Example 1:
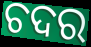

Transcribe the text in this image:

ଚଦର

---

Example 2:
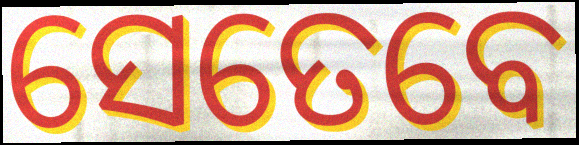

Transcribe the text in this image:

ସେତେବେ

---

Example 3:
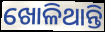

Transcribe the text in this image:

ଖୋଳିଥାନ୍ତି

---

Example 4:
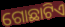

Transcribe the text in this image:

ଗୋଛାଟିଏ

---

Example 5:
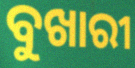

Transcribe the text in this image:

ବୁଖାରୀ